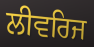
ਲੀਵਰਿਜ